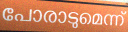
പോരാടുമെന്ന്